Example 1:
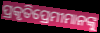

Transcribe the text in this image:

ପ୍ରକୃତିପ୍ରେମୀମାନଙ୍କୁ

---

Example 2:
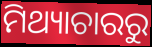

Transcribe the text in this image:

ମିଥ୍ୟାଚାରରୁ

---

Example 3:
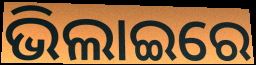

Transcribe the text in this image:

ଭିଲାଇରେ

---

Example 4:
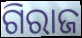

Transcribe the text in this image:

ଗିରାଜ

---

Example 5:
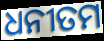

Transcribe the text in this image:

ଧନୀତମ